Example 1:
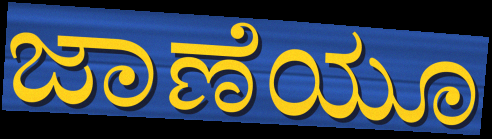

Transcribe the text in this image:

ಜಾಣೆಯೂ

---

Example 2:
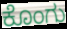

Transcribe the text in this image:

ಕೊಂಗು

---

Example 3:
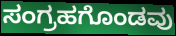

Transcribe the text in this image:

ಸಂಗ್ರಹಗೊಂಡವು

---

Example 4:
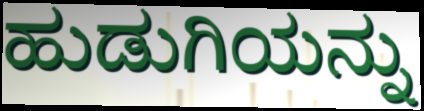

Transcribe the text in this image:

ಹುಡುಗಿಯನ್ನು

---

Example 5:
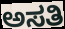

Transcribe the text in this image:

ಅಸತಿ